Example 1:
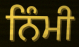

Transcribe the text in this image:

ਨਿੰਮੀ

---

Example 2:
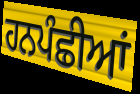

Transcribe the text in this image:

ਹਨਪੰਛੀਆਂ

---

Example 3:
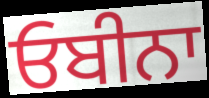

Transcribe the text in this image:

ਓਬੀਨਾ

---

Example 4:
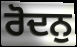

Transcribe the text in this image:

ਰੋਦਨੁ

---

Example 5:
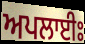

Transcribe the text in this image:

ਅਪਲਾਈਃ